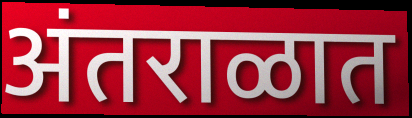
अंतराळात